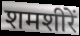
शमशीरें